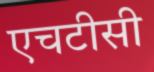
एचटीसी